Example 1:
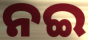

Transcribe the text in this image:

ନଇ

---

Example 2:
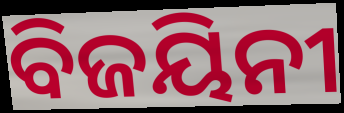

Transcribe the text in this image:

ବିଜୟିନୀ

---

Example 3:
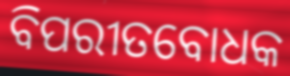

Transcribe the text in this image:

ବିପରୀତବୋଧକ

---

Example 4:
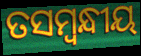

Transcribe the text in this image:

ତସମ୍ବନ୍ଧୀୟ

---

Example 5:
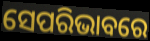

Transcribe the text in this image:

ସେପରିଭାବରେ